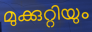
മുക്കുറ്റിയും